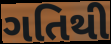
ગતિથી